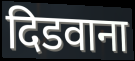
दिडवाना